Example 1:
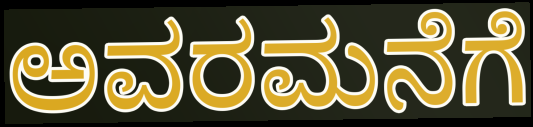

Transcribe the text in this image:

ಅವರಮನೆಗೆ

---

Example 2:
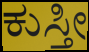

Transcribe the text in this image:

ಕುಸ್ತೀ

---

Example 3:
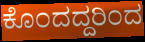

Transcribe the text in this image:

ಕೊಂದದ್ದರಿಂದ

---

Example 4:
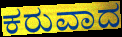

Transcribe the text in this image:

ಕರುವಾದ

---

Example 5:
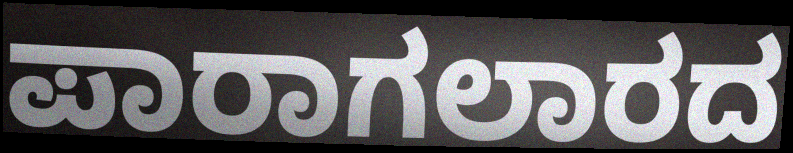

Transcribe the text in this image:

ಪಾರಾಗಲಾರದ